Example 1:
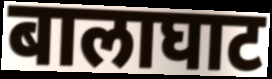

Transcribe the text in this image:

बालाघाट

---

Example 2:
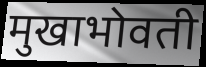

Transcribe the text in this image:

मुखाभोवती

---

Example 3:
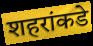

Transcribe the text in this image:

शहरांकडे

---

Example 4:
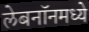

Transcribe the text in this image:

लेबनॉनमध्ये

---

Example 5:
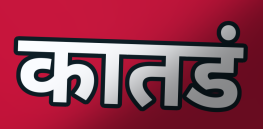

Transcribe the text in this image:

कातडं